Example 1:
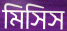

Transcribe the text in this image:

মিসিস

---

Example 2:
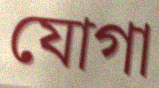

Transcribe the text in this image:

যোগা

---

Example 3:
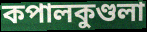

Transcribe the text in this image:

কপালকুণ্ডলা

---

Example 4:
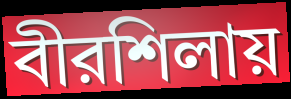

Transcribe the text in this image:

বীরশিলায়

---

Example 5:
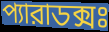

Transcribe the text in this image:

প্যারাডক্সঃ